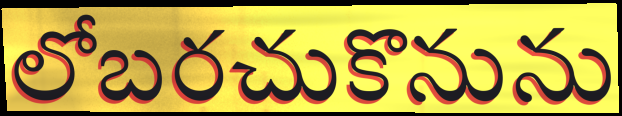
లోబరచుకొనును